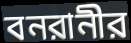
বনরানীর